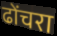
ढोंचरा